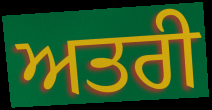
ਅਤਰੀ